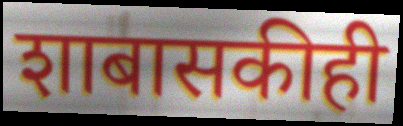
शाबासकीही